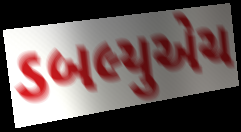
ડબલ્યુએચ